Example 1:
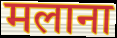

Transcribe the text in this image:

मलाना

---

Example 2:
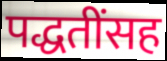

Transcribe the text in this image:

पद्धतींसह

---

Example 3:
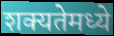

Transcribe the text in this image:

शक्यतेमध्ये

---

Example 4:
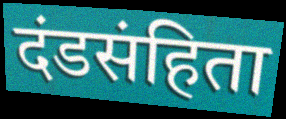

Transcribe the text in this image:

दंडसंहिता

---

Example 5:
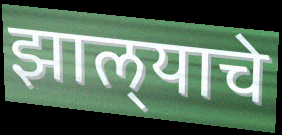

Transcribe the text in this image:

झाल्याचे